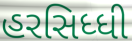
હરસિધ્ધી